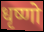
धृष्णो